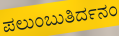
ಪಲುಂಬುತಿರ್ದನಂ